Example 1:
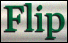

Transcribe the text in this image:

Flip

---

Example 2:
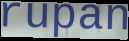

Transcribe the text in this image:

rupan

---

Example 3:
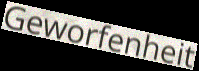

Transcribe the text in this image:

Geworfenheit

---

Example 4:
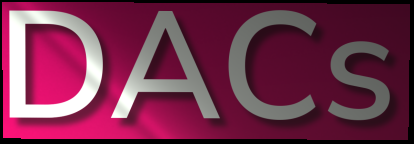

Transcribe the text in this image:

DACs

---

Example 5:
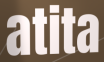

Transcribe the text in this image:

atita